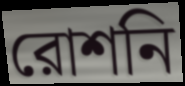
রোশনি